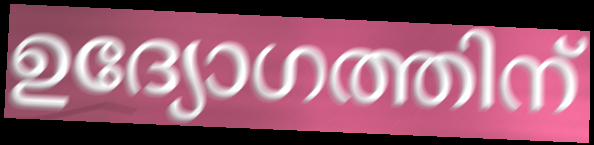
ഉദ്യോഗത്തിന്